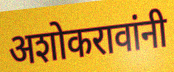
अशोकरावांनी